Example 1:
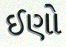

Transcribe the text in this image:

ઈણો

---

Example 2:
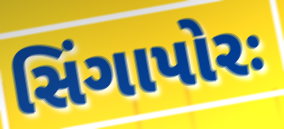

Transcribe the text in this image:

સિંગાપોરઃ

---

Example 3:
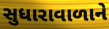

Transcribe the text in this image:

સુધારાવાળાને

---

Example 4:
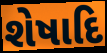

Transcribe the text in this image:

શેષાદિ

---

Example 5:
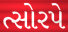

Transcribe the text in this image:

ત્સોરપે